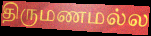
திருமணமல்ல